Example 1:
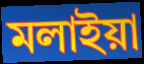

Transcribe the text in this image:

মলাইয়া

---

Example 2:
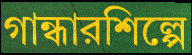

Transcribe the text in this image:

গান্ধারশিল্পে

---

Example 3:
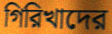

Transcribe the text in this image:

গিরিখাদের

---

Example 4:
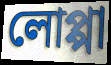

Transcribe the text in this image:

লোপ্পা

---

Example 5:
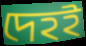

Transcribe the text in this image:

দেহই